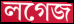
লগেজ